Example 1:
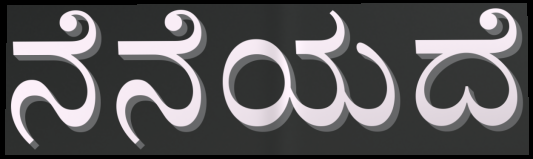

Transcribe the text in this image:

ನೆನೆಯದೆ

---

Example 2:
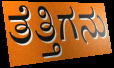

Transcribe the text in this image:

ತೆತ್ತಿಗನು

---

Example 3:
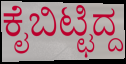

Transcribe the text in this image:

ಕೈಬಿಟ್ಟಿದ್ದ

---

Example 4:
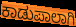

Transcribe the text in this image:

ಕಾಡುಪಾಲಾಗಿ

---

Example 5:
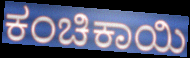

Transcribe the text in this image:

ಕಂಚಿಕಾಯಿ